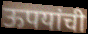
ऊपयांची